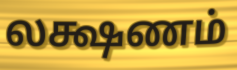
லக்ஷணம்